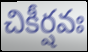
చికీర్షవః